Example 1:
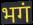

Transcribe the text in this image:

भगं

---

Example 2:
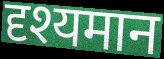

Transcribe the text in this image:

दृश्यमान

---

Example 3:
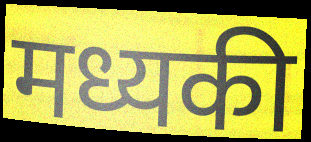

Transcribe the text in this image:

मध्यकी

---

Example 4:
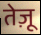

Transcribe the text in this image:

तेज़ू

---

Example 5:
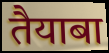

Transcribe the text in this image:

तैयाबा